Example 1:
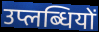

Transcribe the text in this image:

उप्लब्धियों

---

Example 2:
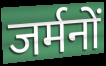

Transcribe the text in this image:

जर्मनों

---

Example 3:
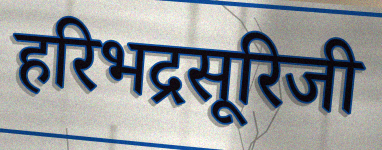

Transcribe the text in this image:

हरिभद्रसूरिजी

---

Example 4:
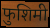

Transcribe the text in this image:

फुशिमी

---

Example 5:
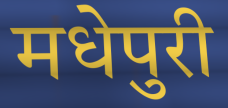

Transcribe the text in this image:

मधेपुरी